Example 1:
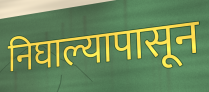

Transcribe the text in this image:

निघाल्यापासून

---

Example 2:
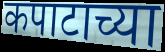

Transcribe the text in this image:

कपाटाच्या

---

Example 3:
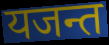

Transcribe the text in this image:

यजन्त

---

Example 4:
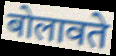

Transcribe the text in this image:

बोलावते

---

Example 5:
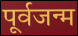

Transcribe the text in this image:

पूर्वजन्म